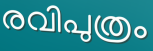
രവിപുത്രം